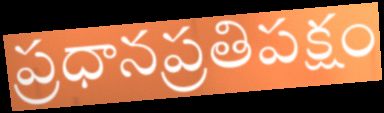
ప్రధానప్రతిపక్షం